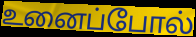
உனைப்போல்